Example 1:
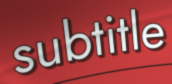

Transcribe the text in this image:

subtitle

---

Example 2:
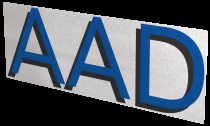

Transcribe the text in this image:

AAD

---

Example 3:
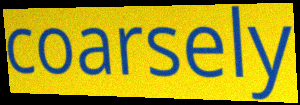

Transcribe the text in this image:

coarsely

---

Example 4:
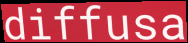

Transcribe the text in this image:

diffusa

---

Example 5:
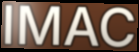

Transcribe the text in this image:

IMAC